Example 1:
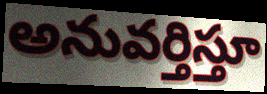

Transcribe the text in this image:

అనువర్తిస్తూ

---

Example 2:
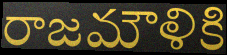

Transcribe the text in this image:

రాజమౌళికి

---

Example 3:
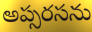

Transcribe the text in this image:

అప్సరసను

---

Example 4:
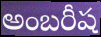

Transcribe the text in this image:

అంబరీష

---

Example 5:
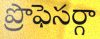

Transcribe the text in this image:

ప్రొఫెసర్గా